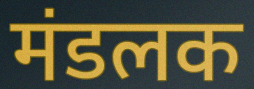
मंडलक